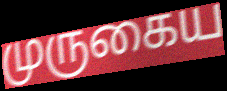
முருகைய